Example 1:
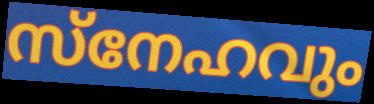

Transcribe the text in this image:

സ്നേഹവും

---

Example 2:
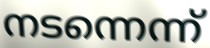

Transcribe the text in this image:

നടന്നെന്ന്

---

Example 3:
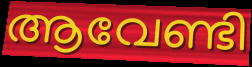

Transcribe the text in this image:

ആവേണ്ടി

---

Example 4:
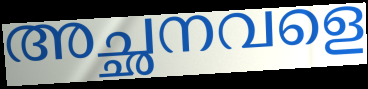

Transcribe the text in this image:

അച്ഛനവളെ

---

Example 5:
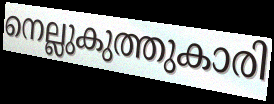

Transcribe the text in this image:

നെല്ലുകുത്തുകാരി